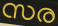
സര